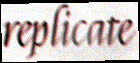
replicate